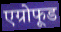
एग्रोफूड